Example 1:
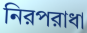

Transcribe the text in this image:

নিরপরাধা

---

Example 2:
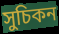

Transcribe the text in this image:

সুচিকন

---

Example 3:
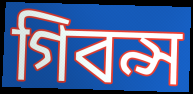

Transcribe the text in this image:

গিবন্স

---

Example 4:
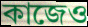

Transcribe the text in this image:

কাজেও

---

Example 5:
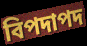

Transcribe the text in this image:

বিপদাপদ